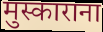
मुस्काराना